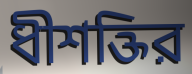
ধীশক্তির